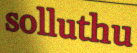
solluthu